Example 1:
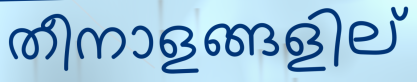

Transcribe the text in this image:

തീനാളങ്ങളില്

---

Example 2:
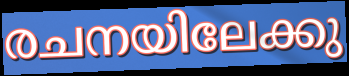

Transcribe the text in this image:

രചനയിലേക്കു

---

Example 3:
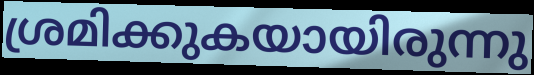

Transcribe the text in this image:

ശ്രമിക്കുകയായിരുന്നു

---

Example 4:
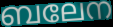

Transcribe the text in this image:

ബലേന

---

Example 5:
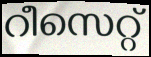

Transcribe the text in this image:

റീസെറ്റ്